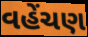
વહેંચણ